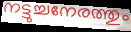
നട്ടുച്ചനേരത്തും